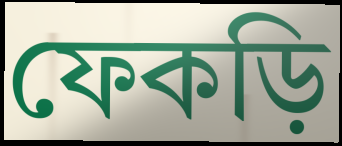
ফেকড়ি